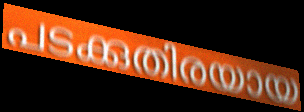
പടക്കുതിരയായ